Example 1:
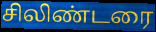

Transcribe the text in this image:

சிலிண்டரை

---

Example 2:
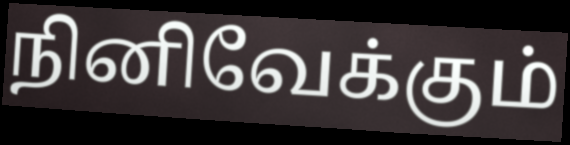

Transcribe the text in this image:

நினிவேக்கும்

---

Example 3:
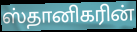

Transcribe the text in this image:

ஸ்தானிகரின்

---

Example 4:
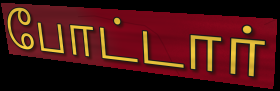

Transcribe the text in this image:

போட்டார்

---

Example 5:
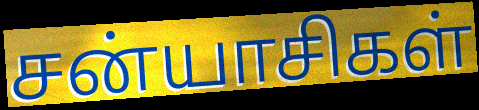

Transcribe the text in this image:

சன்யாசிகள்